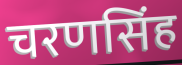
चरणसिंह